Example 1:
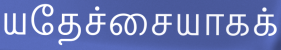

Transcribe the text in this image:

யதேச்சையாகக்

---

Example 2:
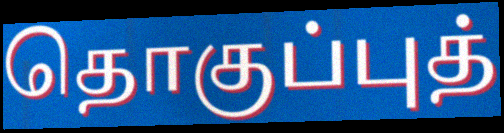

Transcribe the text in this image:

தொகுப்புத்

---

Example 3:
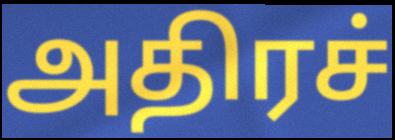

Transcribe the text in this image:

அதிரச்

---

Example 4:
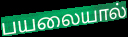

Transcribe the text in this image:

பயலையால்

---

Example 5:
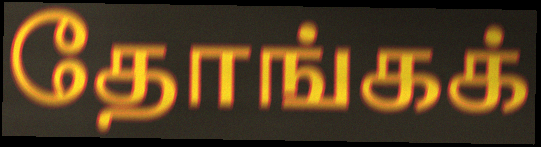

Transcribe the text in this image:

தோங்கக்